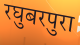
रघुबरपुरा